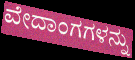
ವೇದಾಂಗಗಳನ್ನು